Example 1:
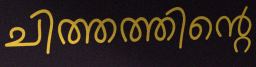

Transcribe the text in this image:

ചിത്തത്തിന്റെ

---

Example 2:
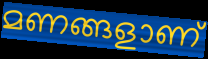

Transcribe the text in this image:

മണങ്ങളാണ്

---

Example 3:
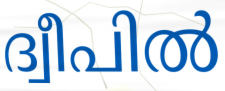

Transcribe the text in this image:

ദ്വീപിൽ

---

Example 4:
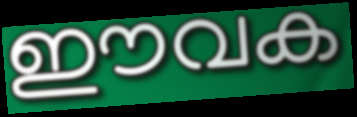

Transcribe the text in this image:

ഈവക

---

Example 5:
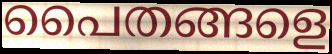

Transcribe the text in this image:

പൈതങ്ങളെ